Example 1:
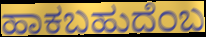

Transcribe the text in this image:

ಹಾಕಬಹುದೆಂಬ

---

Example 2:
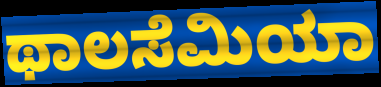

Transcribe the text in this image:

ಥಾಲಸೆಮಿಯಾ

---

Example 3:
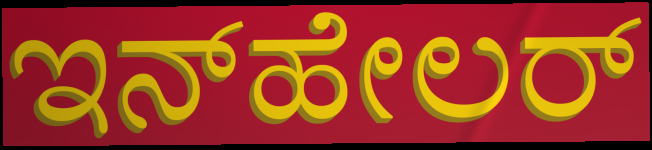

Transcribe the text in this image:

ಇನ್‌ಹೇಲರ್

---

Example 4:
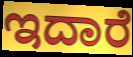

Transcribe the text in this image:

ಇದಾರೆ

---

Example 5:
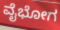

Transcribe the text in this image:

ವೈಭೋಗ